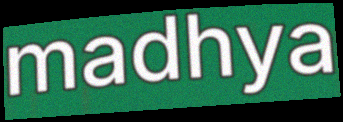
madhya